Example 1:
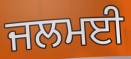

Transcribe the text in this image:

ਜਲਮਈ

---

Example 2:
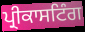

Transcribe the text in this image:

ਪ੍ਰੀਕਾਸਟਿੰਗ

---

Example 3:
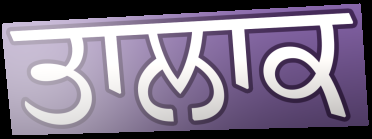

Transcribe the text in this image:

ਤਾਲਾਕ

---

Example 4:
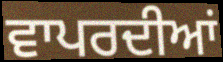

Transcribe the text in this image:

ਵਾਪਰਦੀਆਂ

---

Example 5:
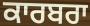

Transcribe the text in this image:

ਕਾਰਬਰਾ